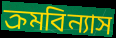
ক্ৰমবিন্যাস